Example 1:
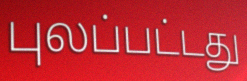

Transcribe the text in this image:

புலப்பட்டது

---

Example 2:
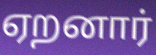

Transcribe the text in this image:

ஏறனார்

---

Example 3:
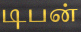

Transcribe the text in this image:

டிபன்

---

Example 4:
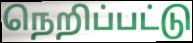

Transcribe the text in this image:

நெறிப்பட்டு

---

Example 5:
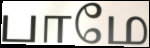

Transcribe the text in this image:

பாமே